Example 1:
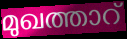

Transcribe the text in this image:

മുഖത്താറ്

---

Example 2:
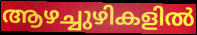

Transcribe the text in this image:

ആഴച്ചുഴികളിൽ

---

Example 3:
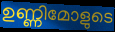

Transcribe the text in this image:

ഉണ്ണിമോളുടെ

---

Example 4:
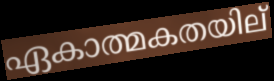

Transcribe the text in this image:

ഏകാത്മകതയില്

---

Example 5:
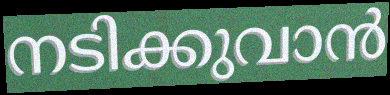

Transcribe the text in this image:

നടിക്കുവാൻ